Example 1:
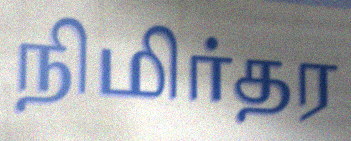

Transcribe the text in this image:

நிமிர்தர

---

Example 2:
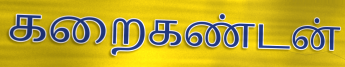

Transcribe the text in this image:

கறைகண்டன்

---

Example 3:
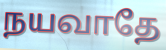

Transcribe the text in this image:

நயவாதே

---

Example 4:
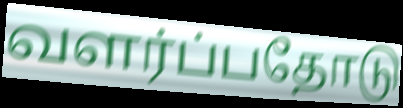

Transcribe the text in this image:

வளர்ப்பதோடு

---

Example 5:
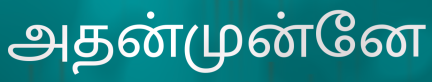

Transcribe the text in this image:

அதன்முன்னே